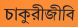
চাকুরীজীবি